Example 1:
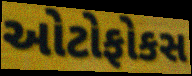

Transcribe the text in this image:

ઓટોફોકસ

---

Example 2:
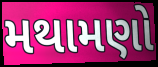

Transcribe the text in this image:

મથામણો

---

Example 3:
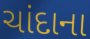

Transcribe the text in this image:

ચાંદાના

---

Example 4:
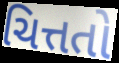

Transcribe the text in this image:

ચિત્તતો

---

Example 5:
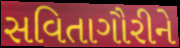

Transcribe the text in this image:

સવિતાગૌરીને